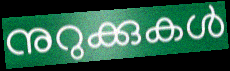
നുറുക്കുകൾ